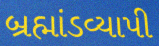
બ્રહ્માંડવ્યાપી